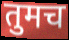
तुमच